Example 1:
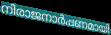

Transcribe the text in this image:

നീരാജനാർപ്പണമായി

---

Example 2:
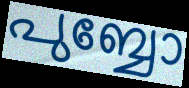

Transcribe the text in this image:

പുബ്ബോ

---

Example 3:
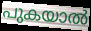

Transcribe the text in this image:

പുകയാൽ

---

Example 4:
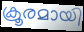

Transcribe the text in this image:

ക്രൂരമായി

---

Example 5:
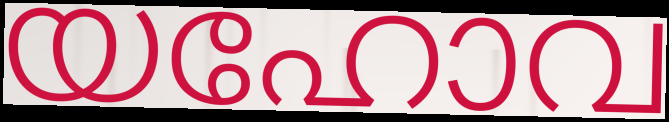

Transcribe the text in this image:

യഹോവ